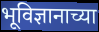
भूविज्ञानाच्या